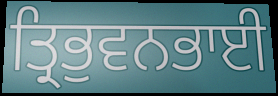
ਤ੍ਰਿਭੁਵਨਭਾਈ